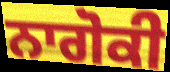
ਨਾਗੋਕੀ